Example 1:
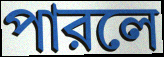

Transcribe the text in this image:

পারলে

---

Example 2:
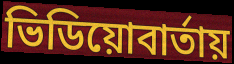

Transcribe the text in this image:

ভিডিয়োবার্তায়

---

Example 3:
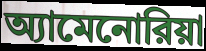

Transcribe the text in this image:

অ্যামেনোরিয়া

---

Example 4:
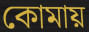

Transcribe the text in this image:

কোমায়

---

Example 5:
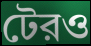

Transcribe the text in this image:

টেরও